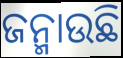
ଜନ୍ମାଉଛି